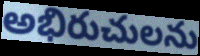
అభిరుచులను